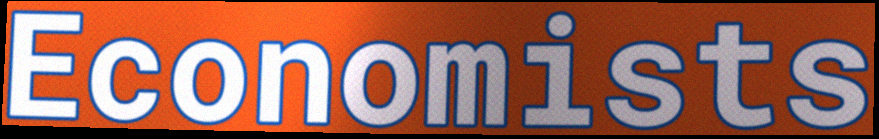
Economists